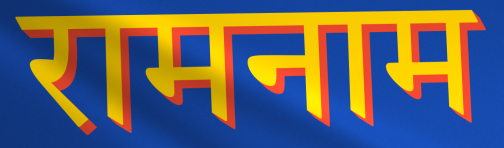
रामनाम